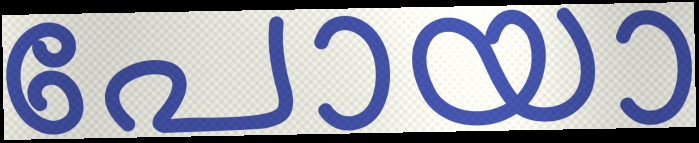
പോയാ